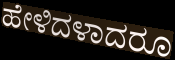
ಹೇಳಿದಳಾದರೂ